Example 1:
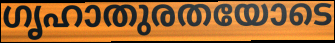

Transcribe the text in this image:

ഗൃഹാതുരതയോടെ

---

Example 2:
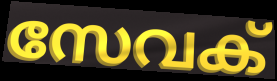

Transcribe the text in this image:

സേവക്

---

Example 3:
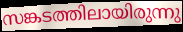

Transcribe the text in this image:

സങ്കടത്തിലായിരുന്നു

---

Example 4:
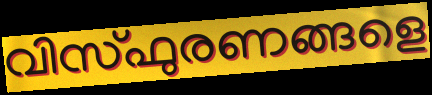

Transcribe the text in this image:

വിസ്ഫുരണങ്ങളെ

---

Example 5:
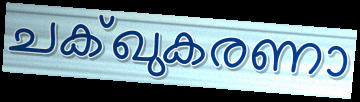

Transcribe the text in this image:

ചക്ഖുകരണാ